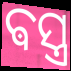
ଵସ୍ତ୍ର